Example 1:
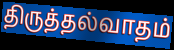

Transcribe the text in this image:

திருத்தல்வாதம்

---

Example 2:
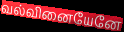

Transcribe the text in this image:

வல்வினையேனே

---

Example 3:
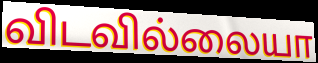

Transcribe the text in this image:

விடவில்லையா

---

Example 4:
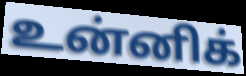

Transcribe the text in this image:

உன்னிக்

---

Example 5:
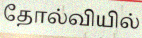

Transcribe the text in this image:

தோல்வியில்